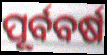
ପୂର୍ବବର୍ଷ